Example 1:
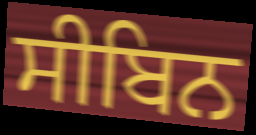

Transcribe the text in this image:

ਸੀਬਿਨ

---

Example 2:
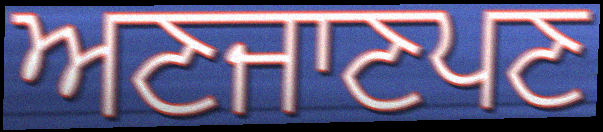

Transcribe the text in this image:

ਅਣਜਾਣਪਣ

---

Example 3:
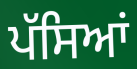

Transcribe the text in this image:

ਪੱਸਿਆਂ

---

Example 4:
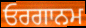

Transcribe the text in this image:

ਓਰਗਾਨਮ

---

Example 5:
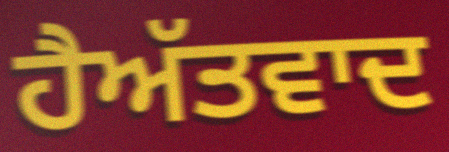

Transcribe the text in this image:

ਹੈਅੱਤਵਾਦ